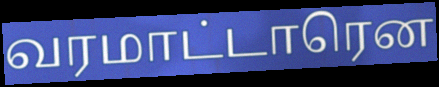
வரமாட்டாரென